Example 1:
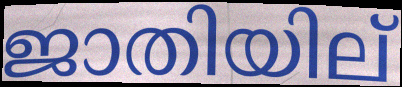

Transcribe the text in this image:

ജാതിയില്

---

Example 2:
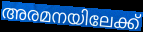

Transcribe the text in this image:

അരമനയിലേക്ക്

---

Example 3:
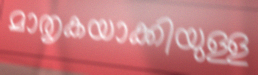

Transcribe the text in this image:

മാതൃകയാക്കിയുള്ള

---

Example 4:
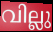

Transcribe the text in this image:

വില്ലു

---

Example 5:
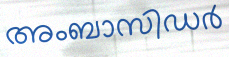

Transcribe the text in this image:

അംബാസിഡർ